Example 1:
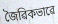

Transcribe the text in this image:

জৈৱিকভাৱে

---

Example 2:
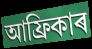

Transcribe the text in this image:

আফ্ৰিকাৰ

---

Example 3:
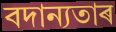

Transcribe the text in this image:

বদান্যতাৰ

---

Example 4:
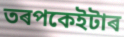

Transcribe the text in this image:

তৰপকেইটাৰ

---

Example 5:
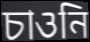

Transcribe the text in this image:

চাওনি